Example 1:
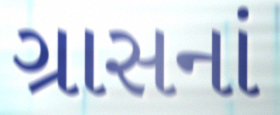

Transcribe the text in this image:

ગ્રાસનાં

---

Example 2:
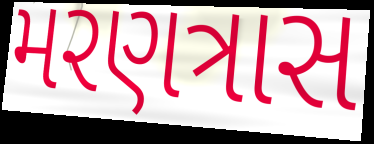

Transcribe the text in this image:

મરણત્રાસ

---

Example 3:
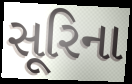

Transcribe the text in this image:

સૂરિના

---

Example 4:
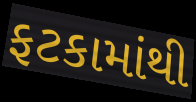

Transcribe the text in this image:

ફટકામાંથી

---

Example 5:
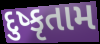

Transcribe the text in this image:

દુષ્કૃતામ